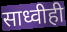
साध्वीही